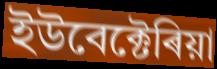
ইউবেক্টেৰিয়া